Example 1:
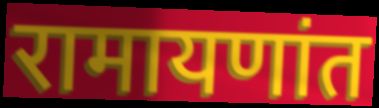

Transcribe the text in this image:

रामायणांत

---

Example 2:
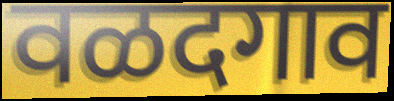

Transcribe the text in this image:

वळदगाव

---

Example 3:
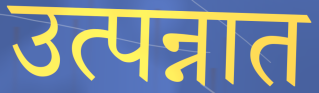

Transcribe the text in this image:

उत्पन्नात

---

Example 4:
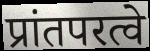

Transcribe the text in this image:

प्रांतपरत्वे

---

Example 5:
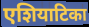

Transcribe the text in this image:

एशियाटिका